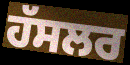
ਹੱਸਲਰ